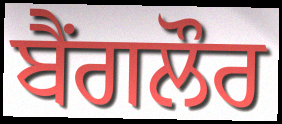
ਬੈੰਗਲੌਰ